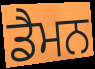
ਡੈਮਨ